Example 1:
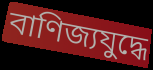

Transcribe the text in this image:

বাণিজ্যযুদ্ধে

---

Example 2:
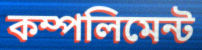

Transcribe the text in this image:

কম্পলিমেন্ট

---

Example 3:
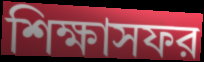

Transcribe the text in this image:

শিক্ষাসফর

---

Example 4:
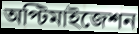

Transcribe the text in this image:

অপ্টিমাইজেশন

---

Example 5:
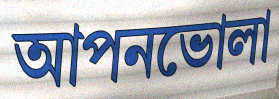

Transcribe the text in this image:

আপনভোলা